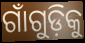
ଗାଁଗୁଡ଼ିକୁ